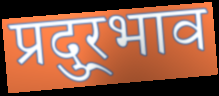
प्रदुर्भाव